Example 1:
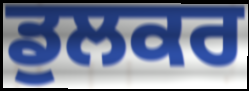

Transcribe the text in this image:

ਡੁਲਕਰ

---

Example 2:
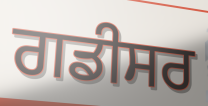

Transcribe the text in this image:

ਗਡੀਸਰ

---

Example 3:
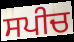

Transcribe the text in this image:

ਸਪੀਚ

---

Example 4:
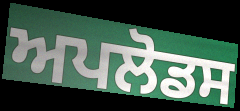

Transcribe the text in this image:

ਅਪਲੋਡਸ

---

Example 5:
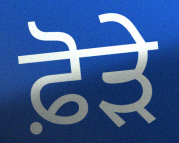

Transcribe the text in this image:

ਫ਼ੋੜੇ